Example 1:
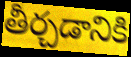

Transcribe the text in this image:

తీర్చడానికి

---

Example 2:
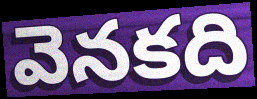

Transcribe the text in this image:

వెనకది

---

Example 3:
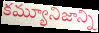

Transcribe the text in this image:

కమ్యూనిజాన్ని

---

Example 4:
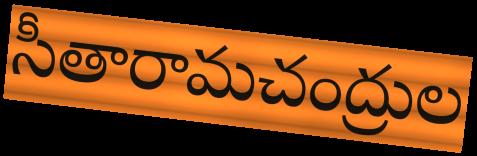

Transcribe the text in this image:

సీతారామచంద్రుల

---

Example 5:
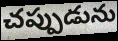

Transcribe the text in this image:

చప్పుడును